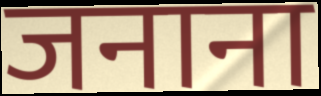
जनाना